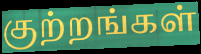
குற்றங்கள்